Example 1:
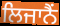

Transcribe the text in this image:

ਲਿਜਾਨੈਂ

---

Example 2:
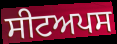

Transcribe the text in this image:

ਸੀਟਅਪਸ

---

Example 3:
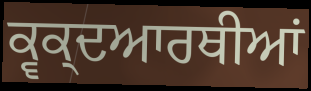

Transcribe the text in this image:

ਕ੍ਵਕ੍ਦਆਰਥੀਆਂ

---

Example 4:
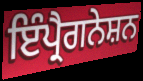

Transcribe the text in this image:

ਇੰਪ੍ਰੈਗਨੇਸ਼ਨ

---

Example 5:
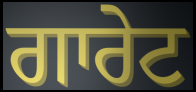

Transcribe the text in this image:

ਗਾਰੇਟ